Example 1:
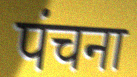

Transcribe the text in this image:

पंचना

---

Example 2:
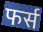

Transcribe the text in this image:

फर्स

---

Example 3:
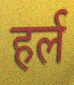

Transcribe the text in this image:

हर्ल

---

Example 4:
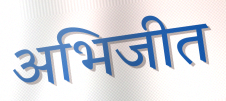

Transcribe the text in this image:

अभिजीत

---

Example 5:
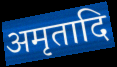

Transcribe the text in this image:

अमृतादि